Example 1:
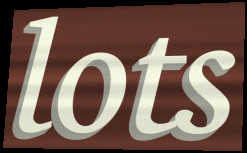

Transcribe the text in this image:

lots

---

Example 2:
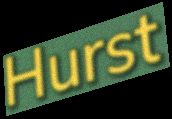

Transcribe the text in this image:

Hurst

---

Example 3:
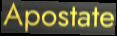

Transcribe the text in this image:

Apostate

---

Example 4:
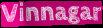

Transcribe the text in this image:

Vinnagar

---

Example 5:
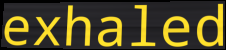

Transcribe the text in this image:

exhaled